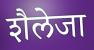
शैलेजा